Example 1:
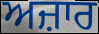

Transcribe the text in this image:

ਅਜ਼ਾਰ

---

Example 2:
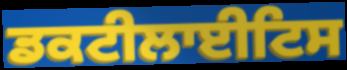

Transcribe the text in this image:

ਡਕਟੀਲਾਈਟਿਸ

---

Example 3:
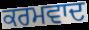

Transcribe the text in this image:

ਕਰਮਵਾਦ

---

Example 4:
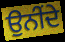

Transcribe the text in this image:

ਉਨੀਂਦੇ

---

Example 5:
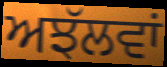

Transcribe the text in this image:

ਅਝੱਲਵਾਂ